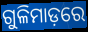
ଗୁଳିମାଡ଼ରେ